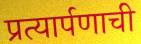
प्रत्यार्पणाची